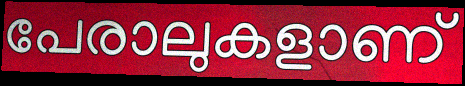
പേരാലുകളാണ്